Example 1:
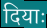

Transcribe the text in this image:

दियाः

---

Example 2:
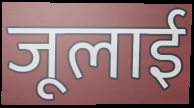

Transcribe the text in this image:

जूलाई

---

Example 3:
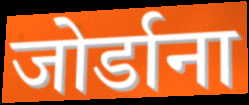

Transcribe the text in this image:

जोर्डाना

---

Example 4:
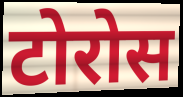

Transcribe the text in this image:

टोरोस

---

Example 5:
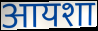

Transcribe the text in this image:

आयशा